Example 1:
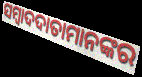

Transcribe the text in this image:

ସମ୍ବାଦଦାତାମାନଙ୍କର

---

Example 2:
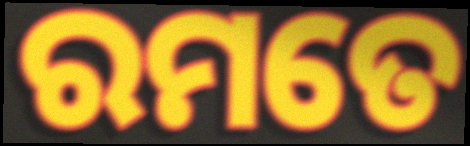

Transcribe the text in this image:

ରମତେ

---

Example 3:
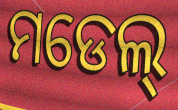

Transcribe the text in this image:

ମଡେଲ୍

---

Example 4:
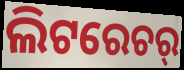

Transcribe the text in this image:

ଲିଟରେଚର୍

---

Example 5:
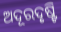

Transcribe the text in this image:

ଅଦୂରଦୃଷ୍ଟି